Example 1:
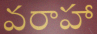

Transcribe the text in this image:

వరాహా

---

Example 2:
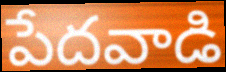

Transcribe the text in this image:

పేదవాడి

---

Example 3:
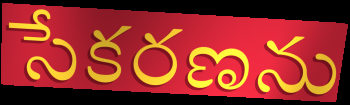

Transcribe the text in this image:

సేకరణను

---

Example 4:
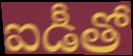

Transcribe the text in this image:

ఐడీతో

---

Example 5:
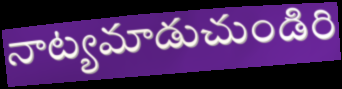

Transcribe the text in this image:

నాట్యమాడుచుండిరి